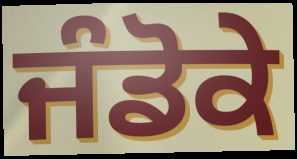
ਜੰਡੋਕੇ